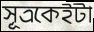
সূত্ৰকেইটা